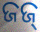
ଜଜ୍